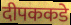
दीपककडे